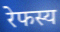
रेफस्य